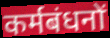
कर्मबंधनों